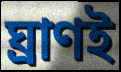
ঘ্রাণই